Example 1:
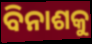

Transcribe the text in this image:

ବିନାଶକୁ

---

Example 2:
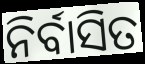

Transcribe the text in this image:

ନିର୍ବାସିତ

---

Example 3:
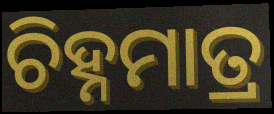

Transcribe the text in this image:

ଚିହ୍ନମାତ୍ର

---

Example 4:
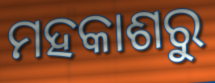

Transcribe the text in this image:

ମହକାଶରୁ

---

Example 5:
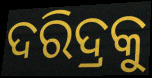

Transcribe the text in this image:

ଦରିଦ୍ରକୁ